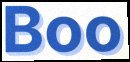
Boo